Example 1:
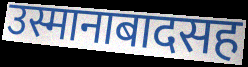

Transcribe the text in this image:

उस्मानाबादसह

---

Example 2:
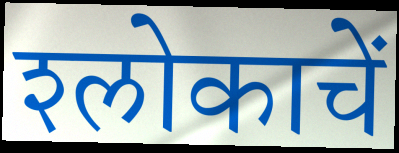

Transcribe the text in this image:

श्लोकाचें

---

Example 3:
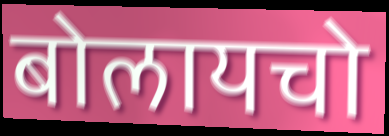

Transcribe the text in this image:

बोलायचो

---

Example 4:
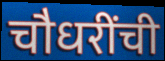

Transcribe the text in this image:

चौधरींची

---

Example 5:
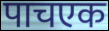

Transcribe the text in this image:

पाचएक